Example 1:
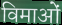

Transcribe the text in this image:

विमाओं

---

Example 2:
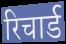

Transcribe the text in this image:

रिचार्ड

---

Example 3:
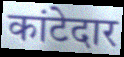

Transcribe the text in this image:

कांटेदार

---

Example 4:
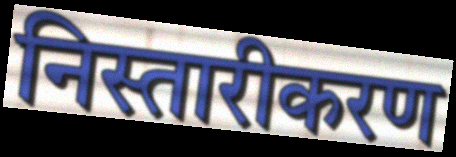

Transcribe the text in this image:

निस्तारीकरण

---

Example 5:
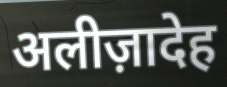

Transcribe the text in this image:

अलीज़ादेह